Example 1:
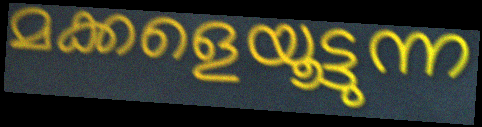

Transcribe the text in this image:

മക്കളെയൂട്ടുന്ന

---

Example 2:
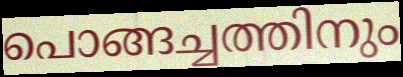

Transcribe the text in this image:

പൊങ്ങച്ചത്തിനും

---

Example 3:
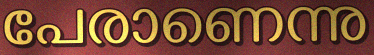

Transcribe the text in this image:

പേരാണെന്നു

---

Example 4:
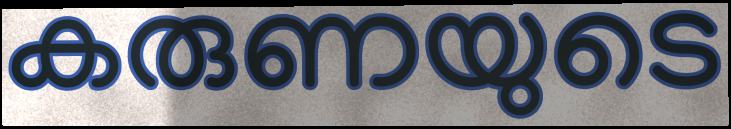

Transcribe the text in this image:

കരുണയുടെ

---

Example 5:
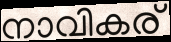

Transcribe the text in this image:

നാവികര്